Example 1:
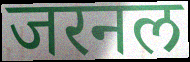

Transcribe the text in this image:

जरनल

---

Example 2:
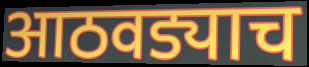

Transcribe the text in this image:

आठवड्याच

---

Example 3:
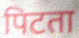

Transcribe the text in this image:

पिटता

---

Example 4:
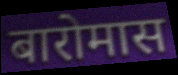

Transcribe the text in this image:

बारोमास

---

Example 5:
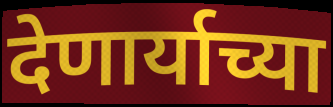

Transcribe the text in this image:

देणार्याच्या